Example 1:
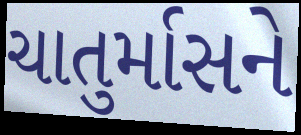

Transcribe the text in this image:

ચાતુર્માસને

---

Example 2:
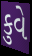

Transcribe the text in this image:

કુવે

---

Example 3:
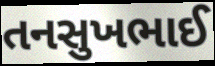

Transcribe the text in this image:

તનસુખભાઈ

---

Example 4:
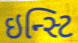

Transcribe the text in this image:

ઇન્સ્ટિ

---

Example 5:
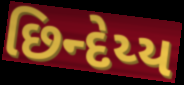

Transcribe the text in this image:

છિન્દેય્ય